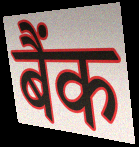
बैंक